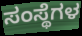
ಸಂಸ್ಥೆಗಳ